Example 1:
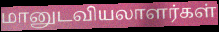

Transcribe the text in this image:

மானுடவியலாளர்கள்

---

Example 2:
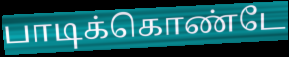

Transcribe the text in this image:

பாடிக்கொண்டே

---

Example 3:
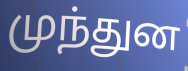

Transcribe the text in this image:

முந்துன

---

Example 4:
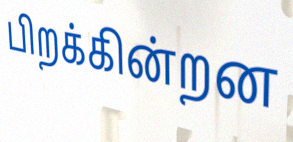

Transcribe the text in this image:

பிறக்கின்றன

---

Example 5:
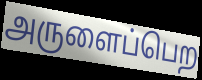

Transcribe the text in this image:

அருளைப்பெற